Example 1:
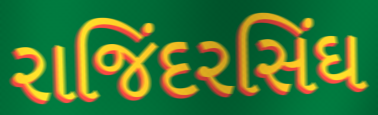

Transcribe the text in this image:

રાજિંદરસિંઘ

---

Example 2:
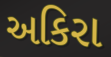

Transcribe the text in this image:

અકિરા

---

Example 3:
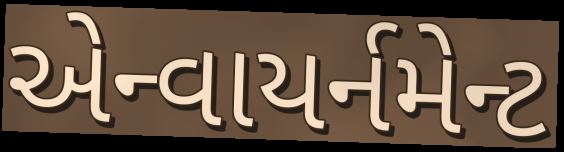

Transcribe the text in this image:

એન્વાયર્નમેન્ટ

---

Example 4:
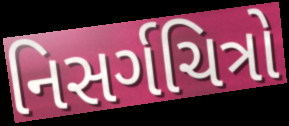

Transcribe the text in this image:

નિસર્ગચિત્રો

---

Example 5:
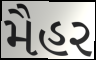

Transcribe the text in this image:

મૈહર